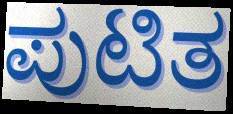
ಪುಟಿತ